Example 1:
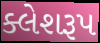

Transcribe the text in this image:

ક્લેશરૂપ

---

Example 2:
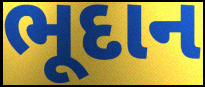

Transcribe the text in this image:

ભૂદાન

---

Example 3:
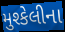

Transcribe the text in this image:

મુશ્કેલીના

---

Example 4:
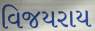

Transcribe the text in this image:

વિજયરાય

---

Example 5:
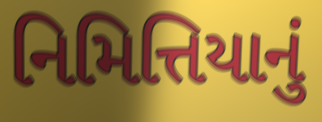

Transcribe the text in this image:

નિમિત્તિયાનું